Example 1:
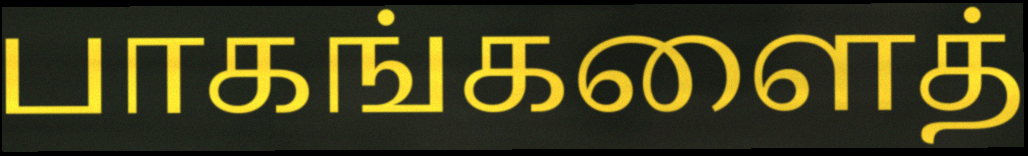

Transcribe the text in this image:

பாகங்களைத்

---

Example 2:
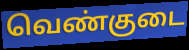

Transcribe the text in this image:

வெண்குடை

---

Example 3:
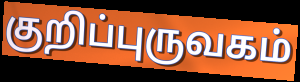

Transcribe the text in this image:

குறிப்புருவகம்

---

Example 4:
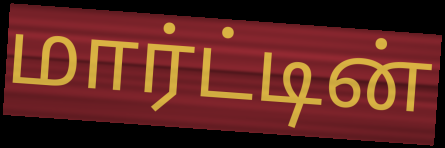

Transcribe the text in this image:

மார்ட்டின்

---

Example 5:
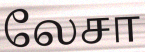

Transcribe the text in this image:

லேசா